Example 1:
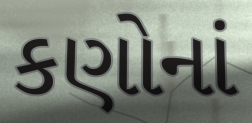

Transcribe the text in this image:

કણોનાં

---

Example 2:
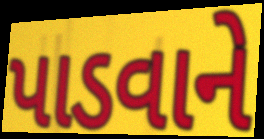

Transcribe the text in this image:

પાડવાને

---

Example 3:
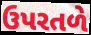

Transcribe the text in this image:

ઉપરતળે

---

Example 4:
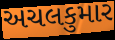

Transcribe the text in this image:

અચલકુમાર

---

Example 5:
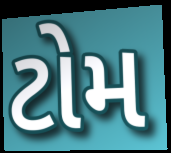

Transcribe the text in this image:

ટોમ